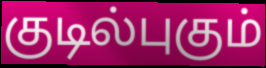
குடில்புகும்